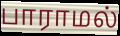
பாராமல்